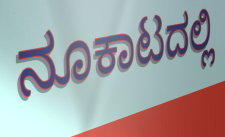
ನೂಕಾಟದಲ್ಲಿ